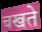
चखते